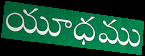
యూధము